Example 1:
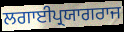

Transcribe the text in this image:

ਲਗਾਈਪ੍ਰਯਾਗਰਾਜ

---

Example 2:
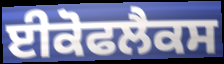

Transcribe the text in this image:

ਈਕੋਫਲੈਕਸ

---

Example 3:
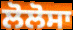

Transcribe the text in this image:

ਲੋਲੋਸਾ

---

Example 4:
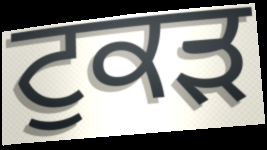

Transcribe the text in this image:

ਟੁਕੜ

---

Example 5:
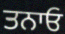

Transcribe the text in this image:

ਤਨਾਓ